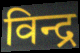
विन्द्र